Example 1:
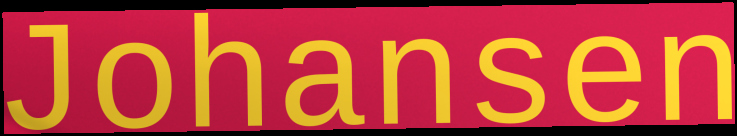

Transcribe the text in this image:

Johansen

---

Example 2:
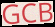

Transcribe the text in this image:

GCB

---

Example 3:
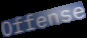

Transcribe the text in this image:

Offense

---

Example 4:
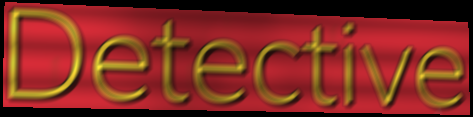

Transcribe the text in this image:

Detective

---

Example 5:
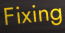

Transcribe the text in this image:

Fixing